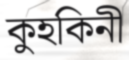
কুহকিনী